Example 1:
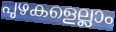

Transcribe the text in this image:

പുഴകളെല്ലാം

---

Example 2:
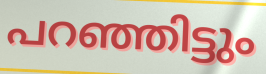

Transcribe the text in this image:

പറഞ്ഞിട്ടും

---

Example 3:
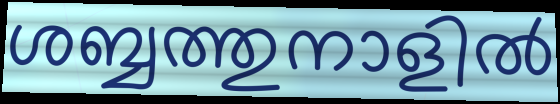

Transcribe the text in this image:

ശബ്ബത്തുനാളിൽ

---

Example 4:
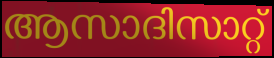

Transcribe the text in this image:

ആസാദിസാറ്റ്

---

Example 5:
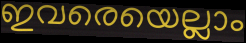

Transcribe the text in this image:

ഇവരെയെല്ലാം